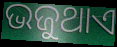
ଭଜୁଥାଏ